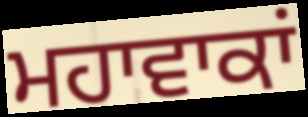
ਮਹਾਵਾਕਾਂ